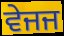
ਵੇਜਜ